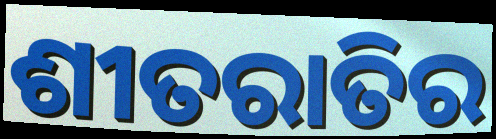
ଶୀତରାତିର